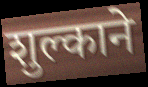
शुल्काने